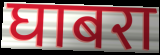
घाबरा